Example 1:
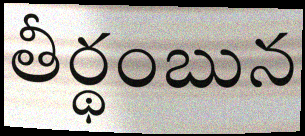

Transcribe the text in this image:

తీర్థంబున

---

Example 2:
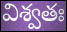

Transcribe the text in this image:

విశ్వతః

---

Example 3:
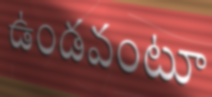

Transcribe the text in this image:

ఉండవంటూ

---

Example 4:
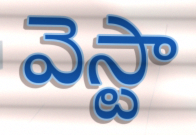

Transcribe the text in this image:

వెస్టా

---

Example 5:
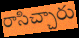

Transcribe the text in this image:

రాసిచ్చారు